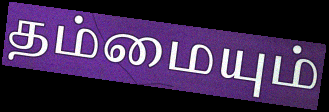
தம்மையும்